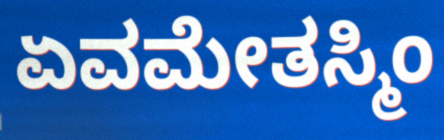
ಏವಮೇತಸ್ಮಿಂ